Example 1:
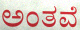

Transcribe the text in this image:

ಅಂತವೆ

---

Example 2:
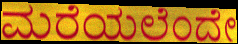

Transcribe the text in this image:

ಮರೆಯಲೆಂದೇ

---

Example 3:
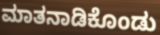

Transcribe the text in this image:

ಮಾತನಾಡಿಕೊಂಡು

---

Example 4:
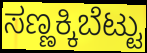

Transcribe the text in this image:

ಸಣ್ಣಕ್ಕಿಬೆಟ್ಟು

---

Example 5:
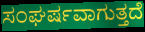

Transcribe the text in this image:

ಸಂಘರ್ಷವಾಗುತ್ತದೆ